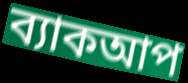
ব্যাকআপ